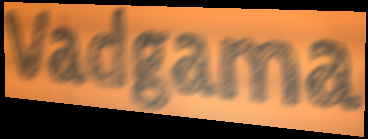
Vadgama